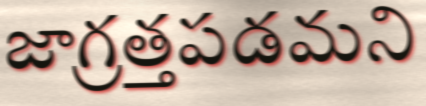
జాగ్రత్తపడమని